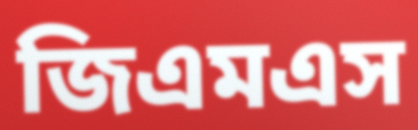
জিএমএস